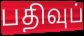
பதிவுப்